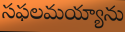
సఫలమయ్యాను